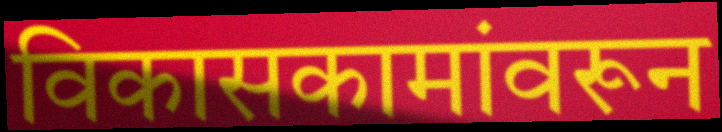
विकासकामांवरून